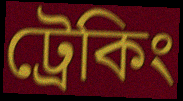
ট্রেকিং